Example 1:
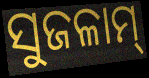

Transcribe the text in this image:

ସୁଜଳାମ୍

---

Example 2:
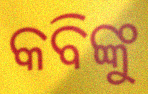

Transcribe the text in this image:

କବିଙ୍କୁ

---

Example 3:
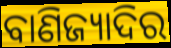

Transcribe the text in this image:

ବାଣିଜ୍ୟାଦିର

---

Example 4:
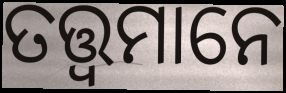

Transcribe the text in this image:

ତତ୍ତ୍ବମାନେ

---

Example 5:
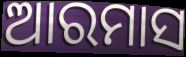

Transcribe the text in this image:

ଆରମାସ